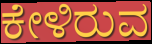
ಕೇಳಿರುವ